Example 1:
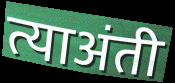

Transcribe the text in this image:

त्याअंती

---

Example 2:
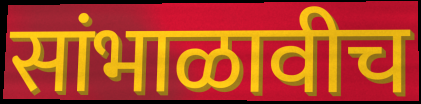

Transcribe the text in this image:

सांभाळावीच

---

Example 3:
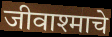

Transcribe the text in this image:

जीवाश्माचे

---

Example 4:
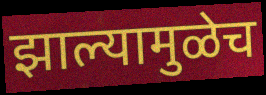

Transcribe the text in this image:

झाल्यामुळेच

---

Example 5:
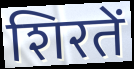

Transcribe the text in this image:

शिरतें